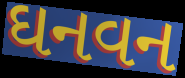
ઘનવન